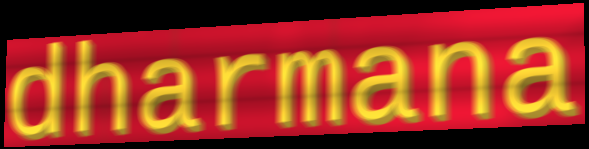
dharmana